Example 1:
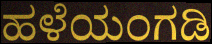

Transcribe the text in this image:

ಹಳೆಯಂಗಡಿ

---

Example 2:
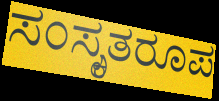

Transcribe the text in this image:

ಸಂಸ್ಕೃತರೂಪ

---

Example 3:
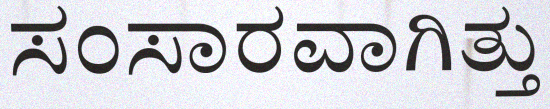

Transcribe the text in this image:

ಸಂಸಾರವಾಗಿತ್ತು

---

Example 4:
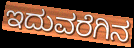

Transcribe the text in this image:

ಇದುವರೆಗಿನ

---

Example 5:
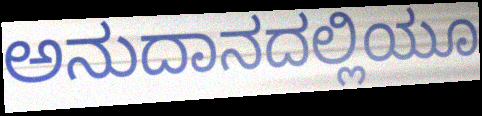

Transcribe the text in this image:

ಅನುದಾನದಲ್ಲಿಯೂ